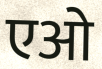
एओ